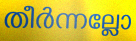
തീർന്നല്ലോ